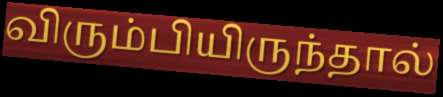
விரும்பியிருந்தால்